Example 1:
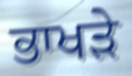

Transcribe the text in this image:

ਭਾਖੜੇ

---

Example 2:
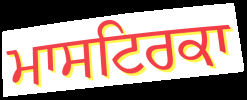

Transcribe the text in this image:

ਮਾਸਟਿਰਕਾ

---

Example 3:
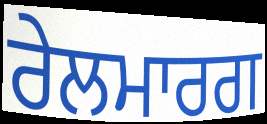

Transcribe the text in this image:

ਰੇਲਮਾਰਗ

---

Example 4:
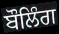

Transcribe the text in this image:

ਬੌਲਿੰਗ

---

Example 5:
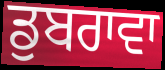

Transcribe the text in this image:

ਡੁਬਰਾਵਾ